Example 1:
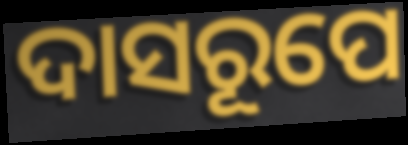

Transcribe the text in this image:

ଦାସରୂପେ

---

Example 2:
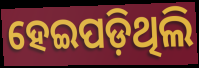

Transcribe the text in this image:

ହେଇପଡ଼ିଥିଲି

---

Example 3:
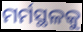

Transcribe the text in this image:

ମର୍ମସ୍ଥଳକୁ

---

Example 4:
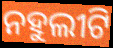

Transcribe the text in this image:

ନହୁଲୀଟି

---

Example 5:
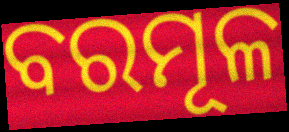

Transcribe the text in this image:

ବରମୂଳ